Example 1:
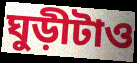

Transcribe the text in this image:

ঘুড়ীটাও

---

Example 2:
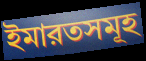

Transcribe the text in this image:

ইমারতসমূহ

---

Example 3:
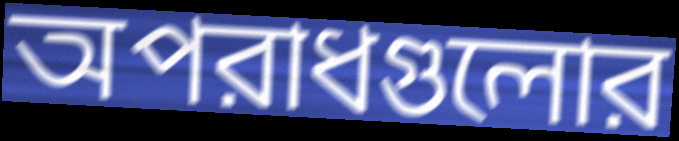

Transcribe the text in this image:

অপরাধগুলোর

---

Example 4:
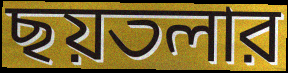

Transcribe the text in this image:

ছয়তলার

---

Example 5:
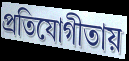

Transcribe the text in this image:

প্রতিযোগীতায়